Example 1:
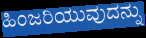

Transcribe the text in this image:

ಹಿಂಜರಿಯುವುದನ್ನು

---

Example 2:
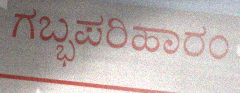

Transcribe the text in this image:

ಗಬ್ಭಪರಿಹಾರಂ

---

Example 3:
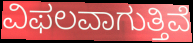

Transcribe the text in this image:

ವಿಫಲವಾಗುತ್ತಿವೆ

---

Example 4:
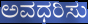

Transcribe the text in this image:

ಅವಧರಿಸು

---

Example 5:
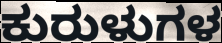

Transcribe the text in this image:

ಕುರುಳುಗಳ